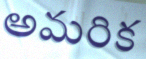
అమరిక